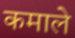
कमाले